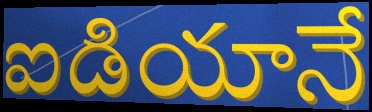
ఐడియానే